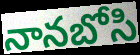
నానబోసి